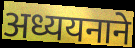
अध्ययनाने